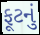
ફૂટનું